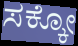
ಸಕ್ಕೋ